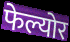
फेल्योर